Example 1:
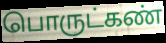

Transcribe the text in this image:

பொருட்கண்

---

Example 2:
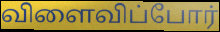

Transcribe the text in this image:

விளைவிப்போர்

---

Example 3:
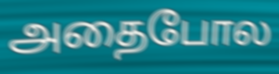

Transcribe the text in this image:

அதைபோல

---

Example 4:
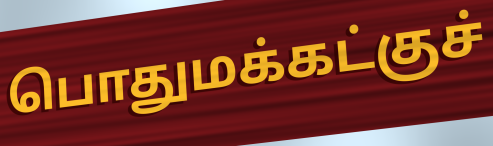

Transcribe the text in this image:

பொதுமக்கட்குச்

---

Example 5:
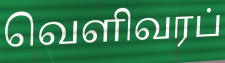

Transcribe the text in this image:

வெளிவரப்